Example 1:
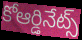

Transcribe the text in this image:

కోఆర్డినేట్స్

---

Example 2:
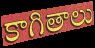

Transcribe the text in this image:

కాగితాలు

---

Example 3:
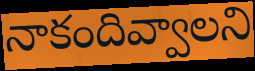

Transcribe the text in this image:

నాకందివ్వాలని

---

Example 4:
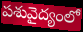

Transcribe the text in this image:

పశువైద్యంలో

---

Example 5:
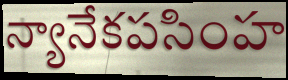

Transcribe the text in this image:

న్యానేకపసింహ